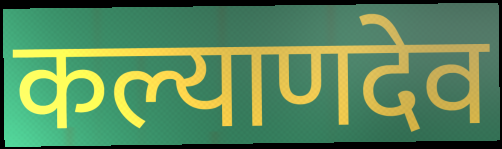
कल्याणदेव